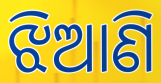
ଝିଆଣି